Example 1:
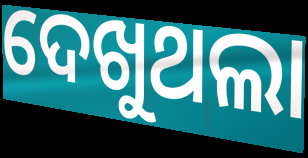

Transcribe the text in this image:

ଦେଖୁଥଲା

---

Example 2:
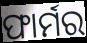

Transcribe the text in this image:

ଫାର୍ମର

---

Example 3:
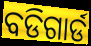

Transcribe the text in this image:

ବଡିଗାର୍ଡ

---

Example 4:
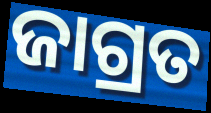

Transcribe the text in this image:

ଜାଗ୍ରତ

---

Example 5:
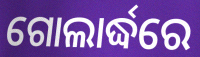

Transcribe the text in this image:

ଗୋଲାର୍ଦ୍ଧରେ